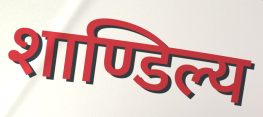
शाण्डिल्य